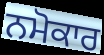
ਨਮੋਕਾਰ